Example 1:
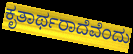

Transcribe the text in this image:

ಕೃತಾರ್ಥರಾದೆವೆಂದು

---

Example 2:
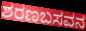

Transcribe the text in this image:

ಶರಣಬಸವನ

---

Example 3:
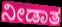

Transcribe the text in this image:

ನೀಡಾತ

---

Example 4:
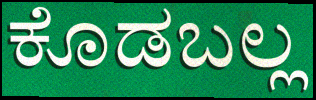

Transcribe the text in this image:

ಕೊಡಬಲ್ಲ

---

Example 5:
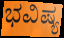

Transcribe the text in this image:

ಭವಿಷ್ಯ